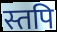
स्‍तपि